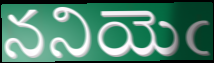
ననియెఁ